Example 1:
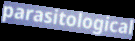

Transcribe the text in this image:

parasitological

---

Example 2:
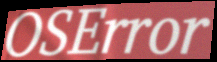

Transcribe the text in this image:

OSError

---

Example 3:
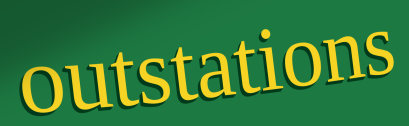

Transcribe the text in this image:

outstations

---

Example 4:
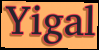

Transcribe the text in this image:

Yigal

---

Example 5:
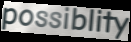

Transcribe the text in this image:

possiblity